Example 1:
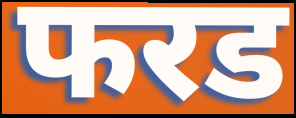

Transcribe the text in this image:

फरड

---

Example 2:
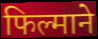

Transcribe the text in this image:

फिल्माने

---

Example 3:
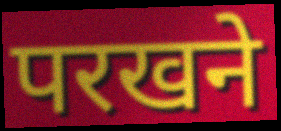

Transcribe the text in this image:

परखने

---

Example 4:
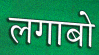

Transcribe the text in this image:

लगाबो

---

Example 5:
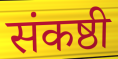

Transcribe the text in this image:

संकष्ठी